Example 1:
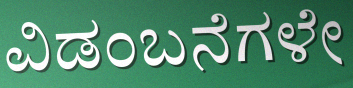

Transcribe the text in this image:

ವಿಡಂಬನೆಗಳೇ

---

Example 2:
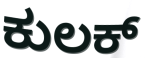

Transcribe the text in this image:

ಕುಲಕ್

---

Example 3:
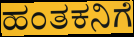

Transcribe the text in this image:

ಹಂತಕನಿಗೆ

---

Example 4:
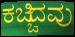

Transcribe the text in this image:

ಕಚ್ಚಿದವು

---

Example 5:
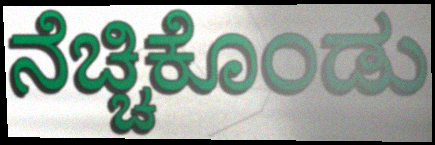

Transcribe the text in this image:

ನೆಚ್ಚಿಕೊಂಡು